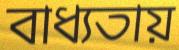
বাধ্যতায়